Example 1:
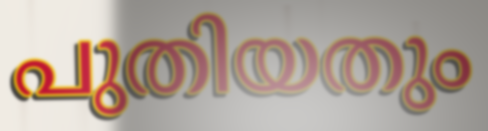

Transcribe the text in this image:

പുതിയതും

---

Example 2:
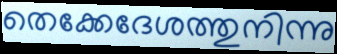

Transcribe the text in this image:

തെക്കേദേശത്തുനിന്നു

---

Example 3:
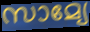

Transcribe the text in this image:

സാമ്യേ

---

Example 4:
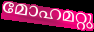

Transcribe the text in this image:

മോഹമറ്റു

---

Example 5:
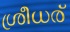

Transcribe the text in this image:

ശ്രീധര്